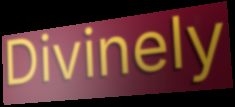
Divinely